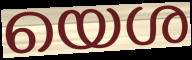
യെശ